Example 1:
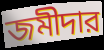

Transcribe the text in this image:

জমীদার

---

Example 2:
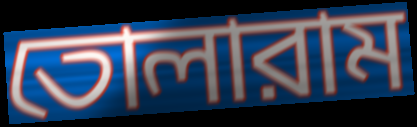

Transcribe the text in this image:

তোলারাম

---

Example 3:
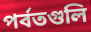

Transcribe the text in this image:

পর্বতগুলি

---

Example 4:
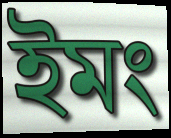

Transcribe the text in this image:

ইমং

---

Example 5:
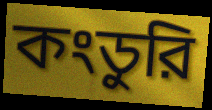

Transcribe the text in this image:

কংডুরি